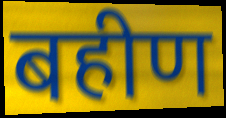
बहीण